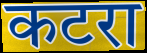
कटरा